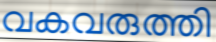
വകവരുത്തി